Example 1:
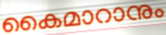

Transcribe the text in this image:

കൈമാറാനും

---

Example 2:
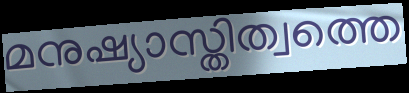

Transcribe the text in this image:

മനുഷ്യാസ്തിത്വത്തെ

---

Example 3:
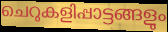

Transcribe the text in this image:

ചെറുകളിപ്പാട്ടങ്ങളും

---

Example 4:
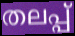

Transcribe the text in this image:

തലപ്പ്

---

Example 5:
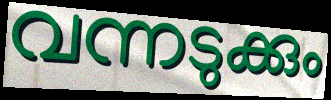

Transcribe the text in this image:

വന്നടുക്കും